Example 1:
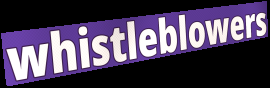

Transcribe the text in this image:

whistleblowers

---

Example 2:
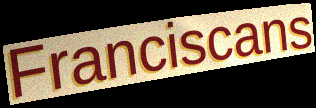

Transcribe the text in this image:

Franciscans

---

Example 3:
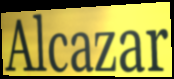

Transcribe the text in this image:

Alcazar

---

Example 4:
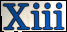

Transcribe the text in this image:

Xiii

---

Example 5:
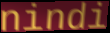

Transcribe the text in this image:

nindi